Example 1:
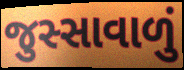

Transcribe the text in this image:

જુસ્સાવાળું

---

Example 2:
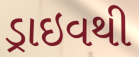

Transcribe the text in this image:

ડ્રાઇવથી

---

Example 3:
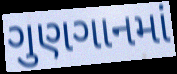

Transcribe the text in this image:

ગુણગાનમાં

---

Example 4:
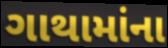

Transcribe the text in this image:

ગાથામાંના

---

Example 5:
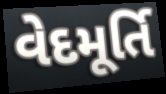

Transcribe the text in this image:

વેદમૂર્તિ